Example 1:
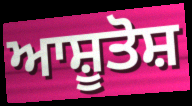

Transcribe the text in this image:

ਆਸ਼ੂਤੋਸ਼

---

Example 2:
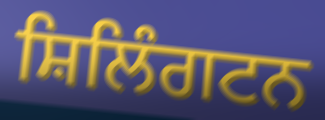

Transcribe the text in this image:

ਸ਼ਿਲਿੰਗਟਨ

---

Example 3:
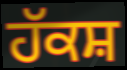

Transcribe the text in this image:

ਹੱਕਸ਼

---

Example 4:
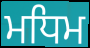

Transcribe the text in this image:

ਮਧਿਮ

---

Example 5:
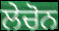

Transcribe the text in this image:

ਲੇਚੋਨ